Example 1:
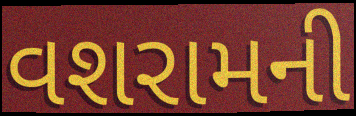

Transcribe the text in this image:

વશરામની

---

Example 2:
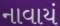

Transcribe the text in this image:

નાવાયં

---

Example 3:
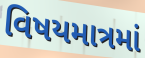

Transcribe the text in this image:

વિષયમાત્રમાં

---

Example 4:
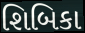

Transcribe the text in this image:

શિબિકા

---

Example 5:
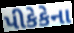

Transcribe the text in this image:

પીકેકેના